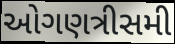
ઓગણત્રીસમી